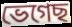
ভেগেছ